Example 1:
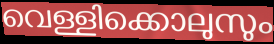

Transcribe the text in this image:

വെള്ളിക്കൊലുസും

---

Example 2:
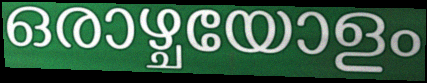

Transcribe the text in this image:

ഒരാഴ്ചയോളം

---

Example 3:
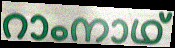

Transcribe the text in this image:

റാംനാഥ്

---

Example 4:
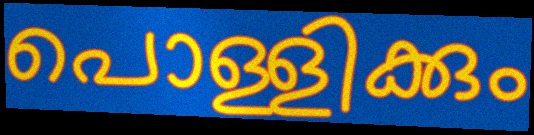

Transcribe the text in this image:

പൊള്ളിക്കും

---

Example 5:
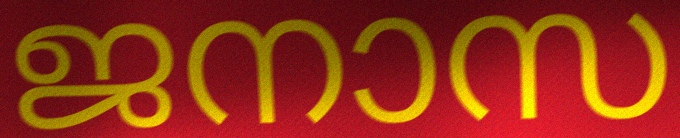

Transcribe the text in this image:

ജനാസ